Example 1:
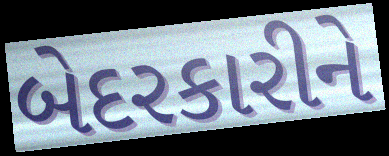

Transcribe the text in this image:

બેદરકારીને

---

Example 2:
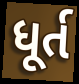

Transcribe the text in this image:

ધૂર્ત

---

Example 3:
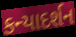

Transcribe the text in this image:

કન્યાદર્શન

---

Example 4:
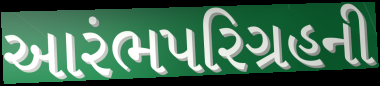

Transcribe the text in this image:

આરંભપરિગ્રહની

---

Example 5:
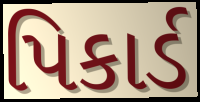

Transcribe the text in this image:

પિકાર્ડ